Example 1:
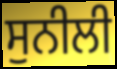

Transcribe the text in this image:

ਸੁਨੀਲੀ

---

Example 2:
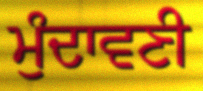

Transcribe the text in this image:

ਮੁੰਦਾਵਣੀ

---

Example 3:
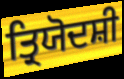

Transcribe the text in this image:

ਤ੍ਰਿਯੋਦਸ਼ੀ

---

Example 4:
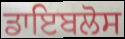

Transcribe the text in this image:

ਡਾਇਬਲੋਸ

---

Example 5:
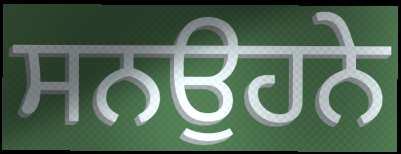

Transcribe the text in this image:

ਸਨਉਹਨੇ